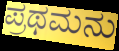
ಪ್ರಥಮನು